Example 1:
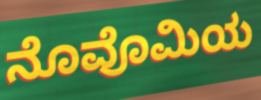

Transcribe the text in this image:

ನೊವೊಮಿಯ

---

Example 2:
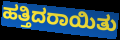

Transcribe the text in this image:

ಹತ್ತಿದರಾಯಿತು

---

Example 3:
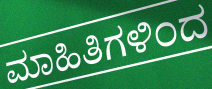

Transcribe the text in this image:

ಮಾಹಿತಿಗಳಿಂದ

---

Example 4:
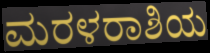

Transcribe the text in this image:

ಮರಳರಾಶಿಯ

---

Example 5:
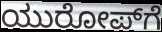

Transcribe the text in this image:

ಯುರೋಪ್‌ಗೆ